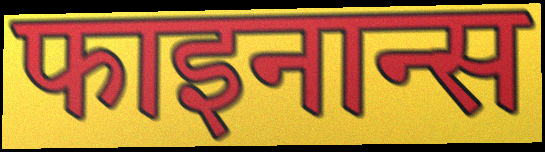
फाइनान्स